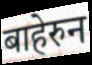
बाहेरुन